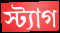
স্ট্যাগ